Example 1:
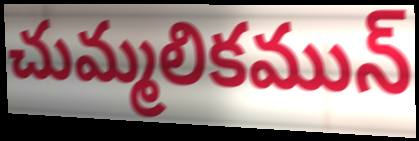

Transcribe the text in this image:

చుమ్మలికమున్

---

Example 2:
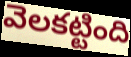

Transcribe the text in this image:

వెలకట్టింది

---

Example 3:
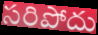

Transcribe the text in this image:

సరిపోదు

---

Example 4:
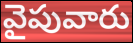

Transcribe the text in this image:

వైపువారు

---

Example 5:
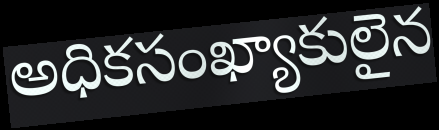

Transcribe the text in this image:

అధికసంఖ్యాకులైన